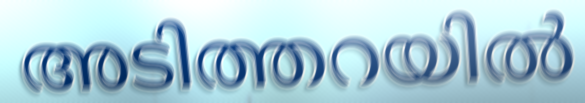
അടിത്തറയിൽ